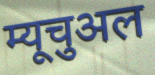
म्यूचुअल